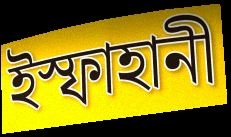
ইস্ফাহানী